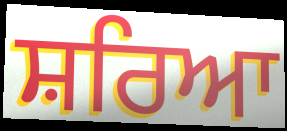
ਸ਼ਰਿਆ